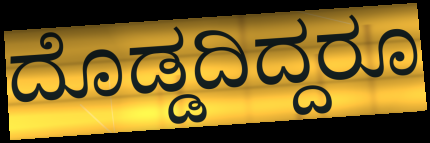
ದೊಡ್ಡದಿದ್ದರೂ